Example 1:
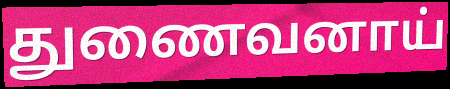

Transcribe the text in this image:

துணைவனாய்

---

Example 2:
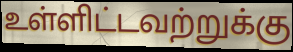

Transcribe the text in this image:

உள்ளிட்டவற்றுக்கு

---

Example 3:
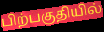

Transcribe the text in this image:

பிற்பகுதியில்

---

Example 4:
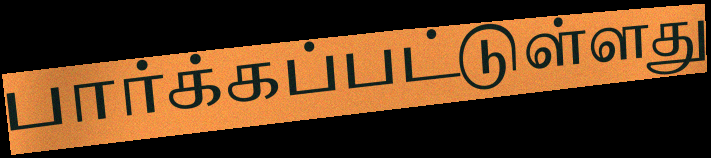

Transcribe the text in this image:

பார்க்கப்பட்டுள்ளது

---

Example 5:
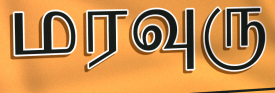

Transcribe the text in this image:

மரவுரு